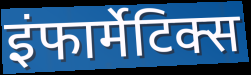
इंफार्मेटिक्स